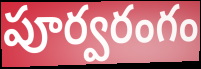
పూర్వరంగం